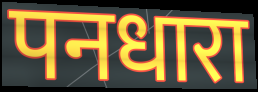
पनधारा